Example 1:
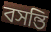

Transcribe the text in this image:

বসন্তি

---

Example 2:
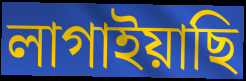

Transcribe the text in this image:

লাগাইয়াছি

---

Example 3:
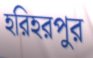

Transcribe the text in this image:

হরিহরপুর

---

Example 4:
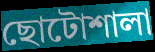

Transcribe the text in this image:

ছোটোশালা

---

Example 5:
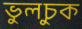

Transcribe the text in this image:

ভুলচুক